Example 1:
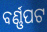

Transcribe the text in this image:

ବର୍ଣ୍ଣପଟ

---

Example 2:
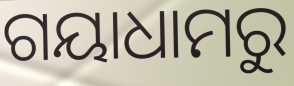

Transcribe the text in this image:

ଗୟାଧାମରୁ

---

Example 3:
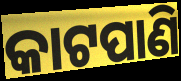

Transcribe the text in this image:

କାଟପାଣି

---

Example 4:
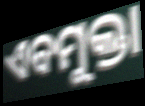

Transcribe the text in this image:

ଏବମୁକ୍ତା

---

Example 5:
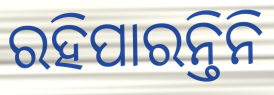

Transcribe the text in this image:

ରହିପାରନ୍ତିନି